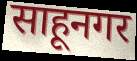
साहूनगर